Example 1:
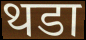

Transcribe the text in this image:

थडा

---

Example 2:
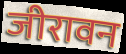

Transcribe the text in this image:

जीरावन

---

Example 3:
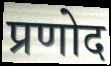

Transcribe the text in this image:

प्रणोद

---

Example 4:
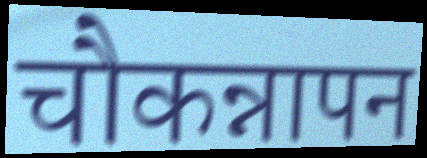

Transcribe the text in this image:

चौकन्नापन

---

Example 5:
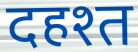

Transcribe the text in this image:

दहश्त